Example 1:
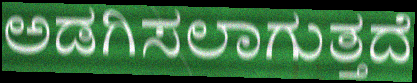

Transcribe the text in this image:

ಅಡಗಿಸಲಾಗುತ್ತದೆ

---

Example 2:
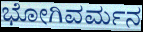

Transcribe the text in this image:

ಭೋಗಿವರ್ಮನ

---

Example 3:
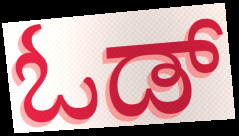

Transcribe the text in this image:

ಓಡ್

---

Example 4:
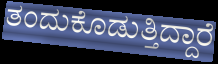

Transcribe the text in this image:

ತಂದುಕೊಡುತ್ತಿದ್ದಾರೆ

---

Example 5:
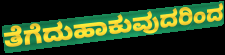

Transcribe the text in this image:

ತೆಗೆದುಹಾಕುವುದರಿಂದ